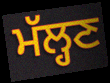
ਮੱਲ੍ਹਣ